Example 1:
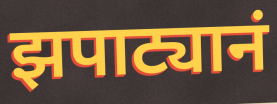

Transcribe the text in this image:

झपाट्यानं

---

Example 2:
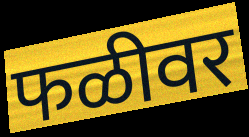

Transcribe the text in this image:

फळीवर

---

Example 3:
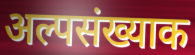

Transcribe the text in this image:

अल्पसंख्याक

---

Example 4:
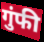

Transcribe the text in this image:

गुंफी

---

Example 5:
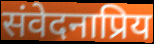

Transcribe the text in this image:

संवेदनाप्रिय